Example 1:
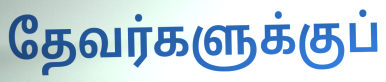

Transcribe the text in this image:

தேவர்களுக்குப்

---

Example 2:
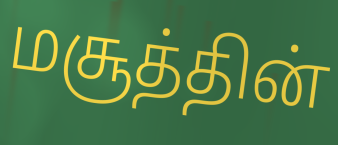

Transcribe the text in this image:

மசூத்தின்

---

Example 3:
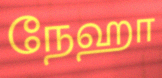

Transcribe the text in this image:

நேஹா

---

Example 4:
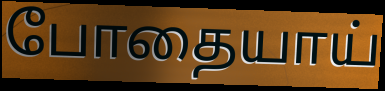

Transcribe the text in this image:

போதையாய்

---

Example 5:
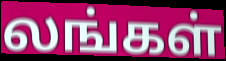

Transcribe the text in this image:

லங்கள்